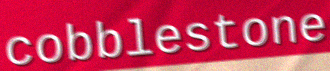
cobblestone